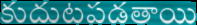
కుదుటపడతాయి